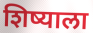
शिष्याला